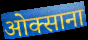
ओक्साना